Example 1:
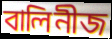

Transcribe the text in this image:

বালিনীজ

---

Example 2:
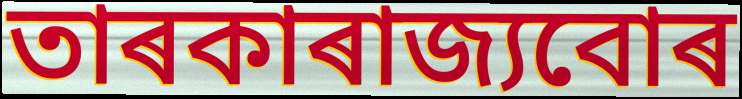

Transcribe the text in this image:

তাৰকাৰাজ্যবোৰ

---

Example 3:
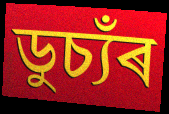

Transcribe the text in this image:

ডুচ্যঁৰ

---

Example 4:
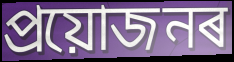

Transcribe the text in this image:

প্ৰয়োজনৰ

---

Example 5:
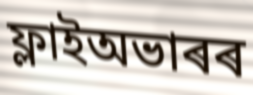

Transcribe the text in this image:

ফ্লাইঅভাৰৰ